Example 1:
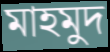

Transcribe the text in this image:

মাহমুদ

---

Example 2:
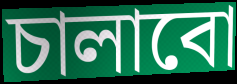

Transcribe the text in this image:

চালাবো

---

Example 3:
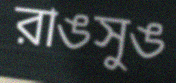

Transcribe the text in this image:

রাঙসুঙ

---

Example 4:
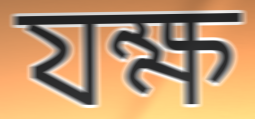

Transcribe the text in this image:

যক্ষ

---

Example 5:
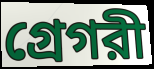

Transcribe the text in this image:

গ্রেগরী